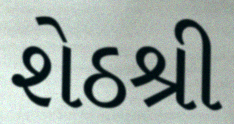
શેઠશ્રી